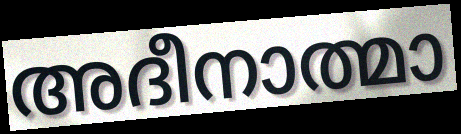
അദീനാത്മാ